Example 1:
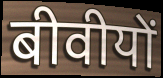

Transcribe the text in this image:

बीवीयों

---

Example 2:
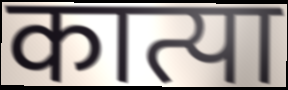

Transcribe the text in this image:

कात्या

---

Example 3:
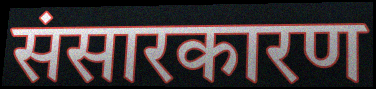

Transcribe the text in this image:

संसारकारण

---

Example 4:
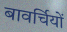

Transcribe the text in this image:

बावर्चियों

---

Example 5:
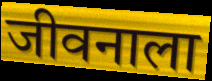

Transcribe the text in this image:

जीवनाला